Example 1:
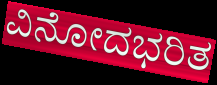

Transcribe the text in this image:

ವಿನೋದಭರಿತ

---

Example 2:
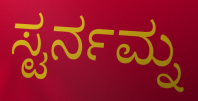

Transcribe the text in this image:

ಸ್ಟರ್ನಮ್ನ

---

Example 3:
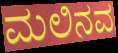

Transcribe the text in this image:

ಮಲಿನವ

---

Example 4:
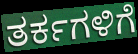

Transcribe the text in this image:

ತರ್ಕಗಳಿಗೆ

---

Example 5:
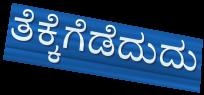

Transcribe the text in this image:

ತೆಕ್ಕೆಗೆಡೆದುದು